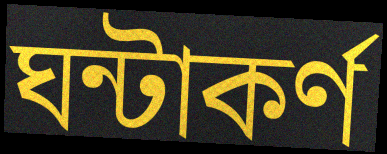
ঘন্টাকর্ণ